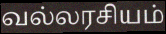
வல்லரசியம்